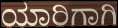
ಯಾರಿಗಾಗಿ